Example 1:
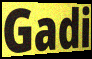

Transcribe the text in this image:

Gadi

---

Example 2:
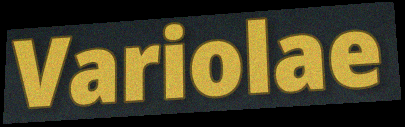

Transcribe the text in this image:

Variolae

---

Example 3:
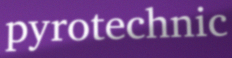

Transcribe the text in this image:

pyrotechnic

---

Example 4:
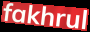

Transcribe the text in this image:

fakhrul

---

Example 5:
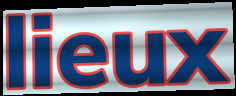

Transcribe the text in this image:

lieux